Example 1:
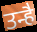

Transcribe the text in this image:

उन्है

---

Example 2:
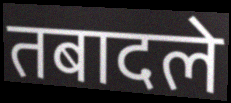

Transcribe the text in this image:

तबादले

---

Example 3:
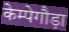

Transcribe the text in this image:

केम्पेगौड़ा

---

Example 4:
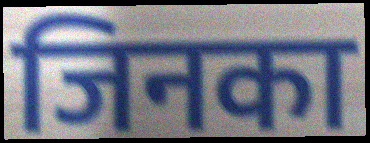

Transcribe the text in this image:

जिनका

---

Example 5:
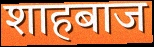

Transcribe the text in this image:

शाहबाज